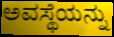
ಅವಸ್ಥೆಯನ್ನು